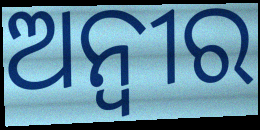
ଅନ୍ୱୀର